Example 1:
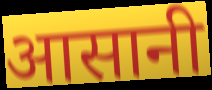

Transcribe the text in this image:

आसानी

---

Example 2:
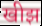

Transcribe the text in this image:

खीझ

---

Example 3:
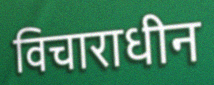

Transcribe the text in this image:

विचाराधीन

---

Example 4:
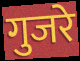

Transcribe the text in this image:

गुजरे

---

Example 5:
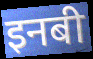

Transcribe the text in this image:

इनबी